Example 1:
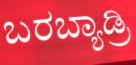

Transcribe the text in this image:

ಬರಬ್ಯಾಡ್ರಿ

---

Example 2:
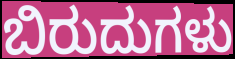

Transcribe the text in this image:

ಬಿರುದುಗಳು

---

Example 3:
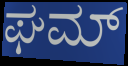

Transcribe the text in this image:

ಘಮ್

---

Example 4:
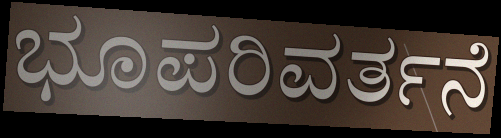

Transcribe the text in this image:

ಭೂಪರಿವರ್ತನೆ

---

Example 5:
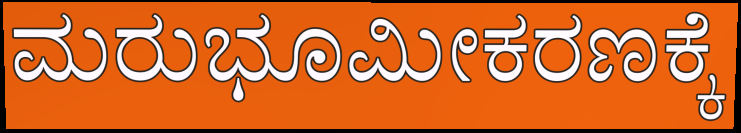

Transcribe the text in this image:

ಮರುಭೂಮೀಕರಣಕ್ಕೆ